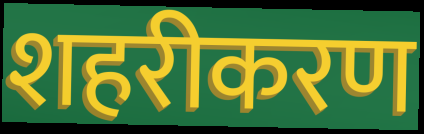
शहरीकरण